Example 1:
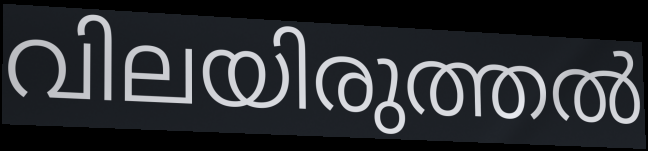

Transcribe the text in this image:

വിലയിരുത്തൽ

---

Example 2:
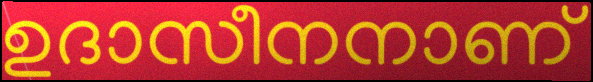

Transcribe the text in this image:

ഉദാസീനനാണ്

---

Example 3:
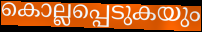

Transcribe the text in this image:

കൊല്ലപ്പെടുകയും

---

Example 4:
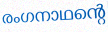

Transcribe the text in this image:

രംഗനാഥന്റെ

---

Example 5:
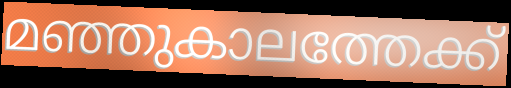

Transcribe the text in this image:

മഞ്ഞുകാലത്തേക്ക്